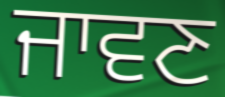
ਜਾਵਣ